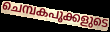
ചെമ്പകപൂക്കളുടെ